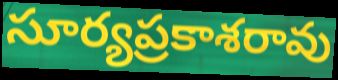
సూర్యప్రకాశరావు